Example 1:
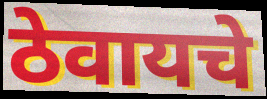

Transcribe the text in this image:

ठेवायचे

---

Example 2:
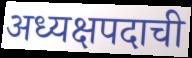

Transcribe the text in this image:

अध्यक्षपदाची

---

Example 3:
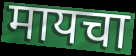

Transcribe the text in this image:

मायचा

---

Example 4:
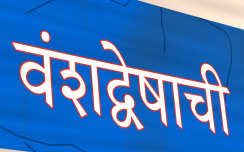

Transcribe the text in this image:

वंशद्वेषाची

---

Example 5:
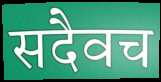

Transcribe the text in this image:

सदैवच